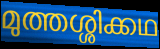
മുത്തശ്ശിക്കഥ